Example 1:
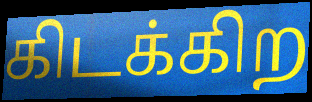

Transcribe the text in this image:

கிடக்கிற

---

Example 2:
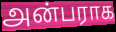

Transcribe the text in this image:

அன்பராக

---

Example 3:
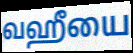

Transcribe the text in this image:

வஹீயை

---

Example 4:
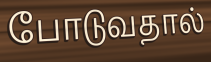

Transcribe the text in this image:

போடுவதால்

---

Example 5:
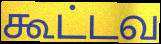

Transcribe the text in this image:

கூட்டவ